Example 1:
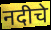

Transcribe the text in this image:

नदीचे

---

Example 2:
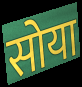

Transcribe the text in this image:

सोया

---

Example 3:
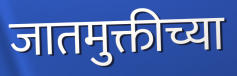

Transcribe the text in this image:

जातमुक्तीच्या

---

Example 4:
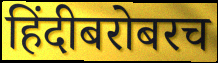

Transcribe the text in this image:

हिंदीबरोबरच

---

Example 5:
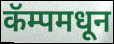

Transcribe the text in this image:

कॅम्पमधून